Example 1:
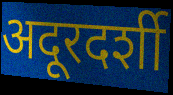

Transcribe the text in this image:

अदूरदर्शी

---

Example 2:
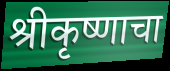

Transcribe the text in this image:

श्रीकृष्णाचा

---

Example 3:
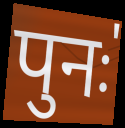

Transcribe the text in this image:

पुनः॑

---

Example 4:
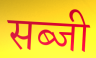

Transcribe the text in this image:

सब्जी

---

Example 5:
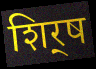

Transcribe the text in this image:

शिर्ष